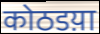
कोठडय़ा